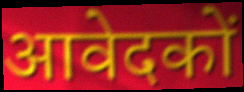
आवेदकों